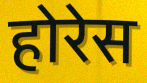
होरेस